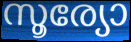
സൂര്യോ